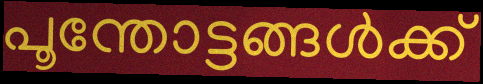
പൂന്തോട്ടങ്ങൾക്ക്